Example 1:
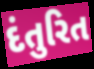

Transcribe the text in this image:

દંતુરિત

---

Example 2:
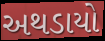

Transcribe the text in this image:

અથડાયો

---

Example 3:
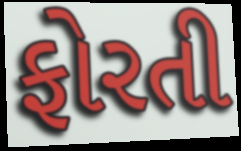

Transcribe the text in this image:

ફોરતી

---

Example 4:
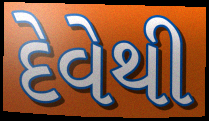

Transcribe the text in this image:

દેવેથી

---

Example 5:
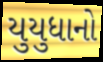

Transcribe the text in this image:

યુયુધાનો